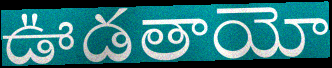
ఊడతాయో